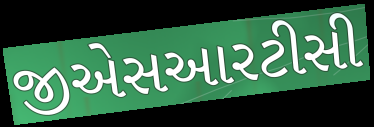
જીએસઆરટીસી